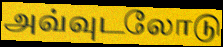
அவ்வுடலோடு